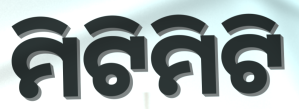
ମିଟିମିଟି